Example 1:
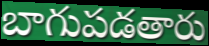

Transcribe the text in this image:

బాగుపడతారు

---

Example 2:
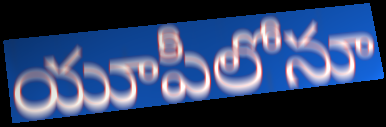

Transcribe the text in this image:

యూపీలోనూ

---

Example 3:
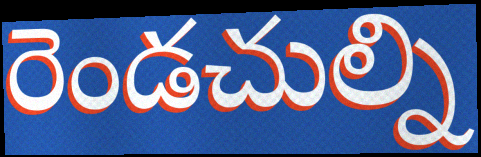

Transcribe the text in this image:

రెండచుల్ని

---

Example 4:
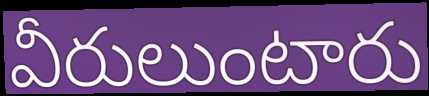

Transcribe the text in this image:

వీరులుంటారు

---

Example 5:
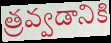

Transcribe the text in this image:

త్రవ్వడానికి